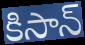
కిసాన్